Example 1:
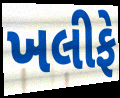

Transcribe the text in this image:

ખલીફે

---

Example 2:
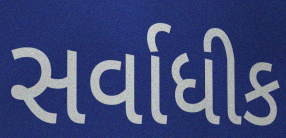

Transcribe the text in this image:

સર્વાધીક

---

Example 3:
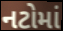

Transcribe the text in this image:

નટોમાં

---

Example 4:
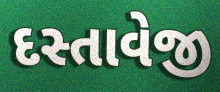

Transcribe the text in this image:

દસ્તાવેજી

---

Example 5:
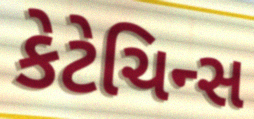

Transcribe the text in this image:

કેટેચિન્સ